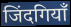
जिंदगियाँ